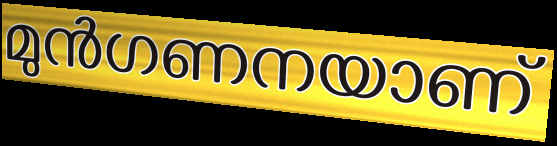
മുൻഗണനയാണ്